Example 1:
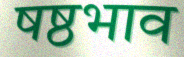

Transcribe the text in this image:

षष्ठभाव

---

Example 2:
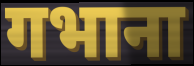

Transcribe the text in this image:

गभाना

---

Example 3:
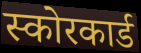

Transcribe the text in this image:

स्कोरकार्ड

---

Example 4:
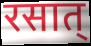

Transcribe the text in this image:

रसात्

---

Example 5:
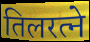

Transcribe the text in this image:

तिलरत्ने